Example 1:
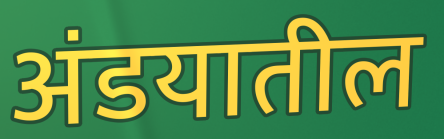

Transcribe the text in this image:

अंडयातील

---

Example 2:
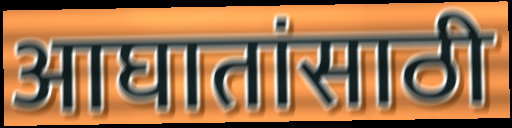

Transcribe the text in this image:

आघातांसाठी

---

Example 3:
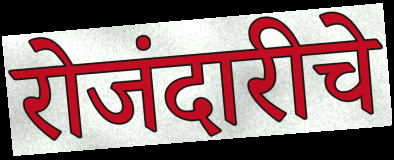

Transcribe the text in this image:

रोजंदारीचे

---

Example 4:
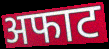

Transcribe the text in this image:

अफाट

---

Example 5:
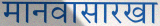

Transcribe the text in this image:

मानवासारखा